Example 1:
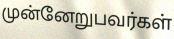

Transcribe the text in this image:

முன்னேறுபவர்கள்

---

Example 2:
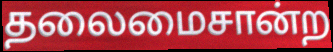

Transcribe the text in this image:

தலைமைசான்ற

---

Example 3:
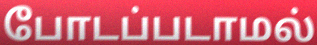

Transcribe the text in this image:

போடப்படாமல்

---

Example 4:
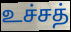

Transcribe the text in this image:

உச்சத்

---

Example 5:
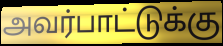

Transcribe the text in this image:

அவர்பாட்டுக்கு